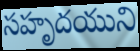
సహృదయుని